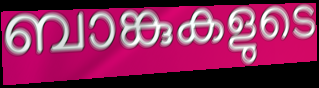
ബാങ്കുകളുടെ